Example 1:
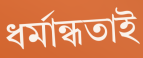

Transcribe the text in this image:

ধর্মান্ধতাই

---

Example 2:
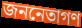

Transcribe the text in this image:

জননেতাগণ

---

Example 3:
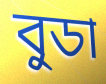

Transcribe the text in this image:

বুডা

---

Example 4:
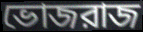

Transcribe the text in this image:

ভোজরাজ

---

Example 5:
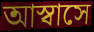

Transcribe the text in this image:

আস্বাসে